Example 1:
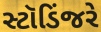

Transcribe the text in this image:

સ્ટૉડિંજરે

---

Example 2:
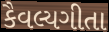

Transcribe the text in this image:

કૈવલ્યગીતા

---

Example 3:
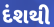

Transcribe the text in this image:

દંશથી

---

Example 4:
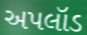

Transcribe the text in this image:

અપલૉડ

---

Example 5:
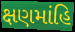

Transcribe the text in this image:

ક્ષણમાંહિ